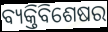
ବ୍ୟକ୍ତିବିଶେଷର